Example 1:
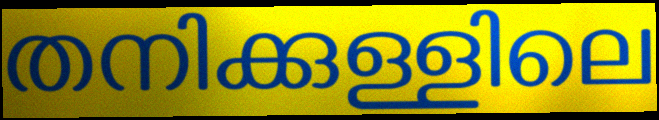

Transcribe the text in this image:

തനിക്കുള്ളിലെ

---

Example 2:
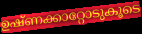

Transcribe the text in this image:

ഉഷ്ണക്കാറ്റോടുകൂടെ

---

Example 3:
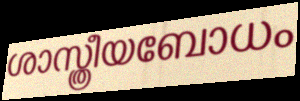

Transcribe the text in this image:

ശാസ്ത്രീയബോധം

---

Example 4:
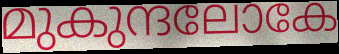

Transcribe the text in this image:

മുകുന്ദലോകേ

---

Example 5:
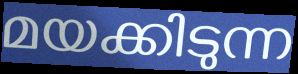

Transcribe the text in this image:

മയക്കിടുന്ന